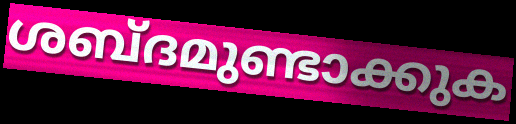
ശബ്ദമുണ്ടാക്കുക